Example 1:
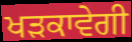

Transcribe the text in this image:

ਖੜਕਾਵੇਗੀ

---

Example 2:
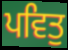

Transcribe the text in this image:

ਪਵਿਤੁ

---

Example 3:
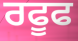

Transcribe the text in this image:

ਰਫੂਫ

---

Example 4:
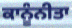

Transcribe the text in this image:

ਕਾਨੂੰਨੀਤਾ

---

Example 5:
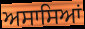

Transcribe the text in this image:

ਅਸਾਸਿਆਂ